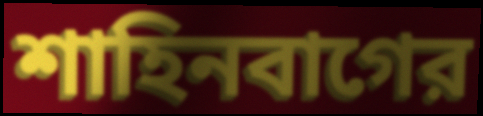
শাহিনবাগের